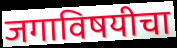
जगाविषयीचा